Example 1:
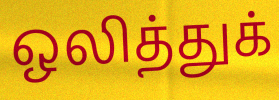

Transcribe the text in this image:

ஒலித்துக்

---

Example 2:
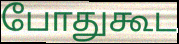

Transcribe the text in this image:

போதுகூட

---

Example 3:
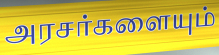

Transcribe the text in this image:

அரசர்களையும்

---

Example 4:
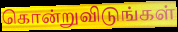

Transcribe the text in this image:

கொன்றுவிடுங்கள்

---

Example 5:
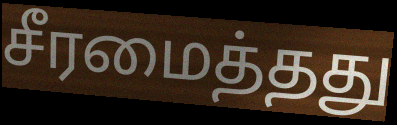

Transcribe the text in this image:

சீரமைத்தது